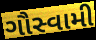
ગૌસ્વામી